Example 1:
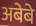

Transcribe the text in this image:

अबेबे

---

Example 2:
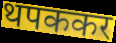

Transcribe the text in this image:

थपककर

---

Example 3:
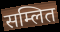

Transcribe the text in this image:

सम्लित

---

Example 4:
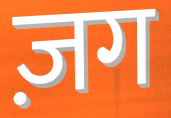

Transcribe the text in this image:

ज़ग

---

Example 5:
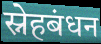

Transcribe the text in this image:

स्नेहबंधन